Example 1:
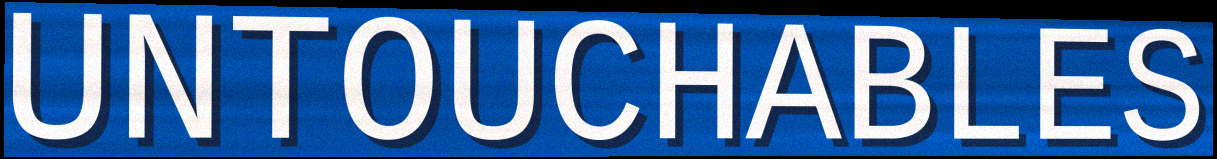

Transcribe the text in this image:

UNTOUCHABLES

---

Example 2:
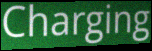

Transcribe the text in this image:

Charging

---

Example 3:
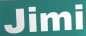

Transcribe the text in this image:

Jimi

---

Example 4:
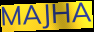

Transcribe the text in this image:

MAJHA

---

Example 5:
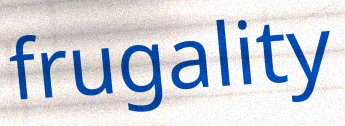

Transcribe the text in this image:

frugality